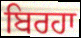
ਬਿਰਹਾ